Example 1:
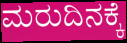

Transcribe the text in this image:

ಮರುದಿನಕ್ಕೆ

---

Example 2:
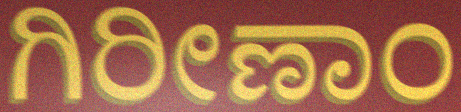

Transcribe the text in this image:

ಗಿರೀಣಾಂ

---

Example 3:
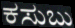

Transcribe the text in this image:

ಕಸುಬು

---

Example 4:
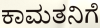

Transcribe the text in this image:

ಕಾಮತನಿಗೆ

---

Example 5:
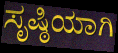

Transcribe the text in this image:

ಸೃಷ್ಠಿಯಾಗಿ